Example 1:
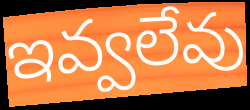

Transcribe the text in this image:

ఇవ్వలేవు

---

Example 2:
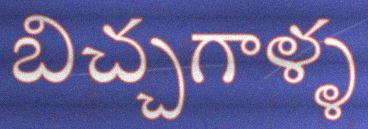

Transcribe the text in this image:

బిచ్చగాళ్ళ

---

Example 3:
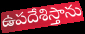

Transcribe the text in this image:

ఉపదేశిస్తాను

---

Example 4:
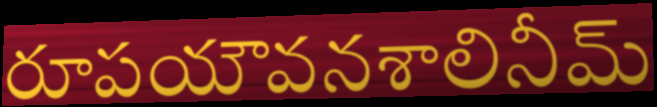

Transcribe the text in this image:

రూపయౌవనశాలినీమ్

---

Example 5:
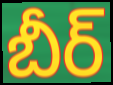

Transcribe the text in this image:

బీర్